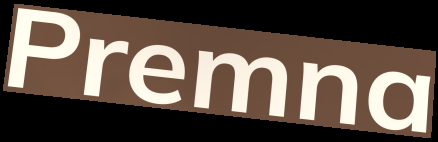
Premna